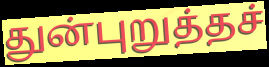
துன்புறுத்தச்